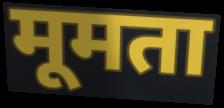
मूमता